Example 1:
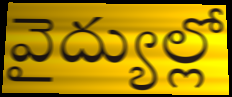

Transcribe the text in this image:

వైద్యుల్లో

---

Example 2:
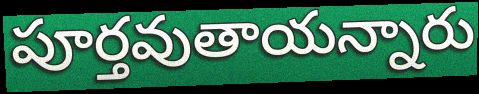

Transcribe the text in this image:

పూర్తవుతాయన్నారు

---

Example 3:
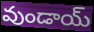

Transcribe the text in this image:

వుండాయ్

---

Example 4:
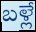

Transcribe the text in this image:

బళ్లే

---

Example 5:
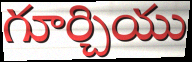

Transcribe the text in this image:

గూర్చియు